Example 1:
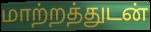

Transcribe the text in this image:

மாற்றத்துடன்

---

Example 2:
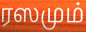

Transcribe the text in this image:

ரஸமும்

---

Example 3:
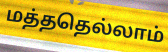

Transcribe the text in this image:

மத்ததெல்லாம்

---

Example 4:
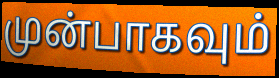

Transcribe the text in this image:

முன்பாகவும்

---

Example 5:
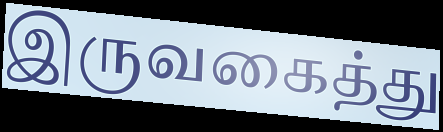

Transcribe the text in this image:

இருவகைத்து